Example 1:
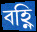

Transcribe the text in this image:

বহ্ণি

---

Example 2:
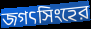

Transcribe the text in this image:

জগৎসিংহের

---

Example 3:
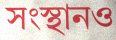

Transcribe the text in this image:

সংস্থানও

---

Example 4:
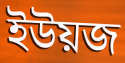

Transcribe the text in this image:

ইউয়জ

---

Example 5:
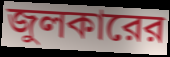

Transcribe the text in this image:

জুলকারের